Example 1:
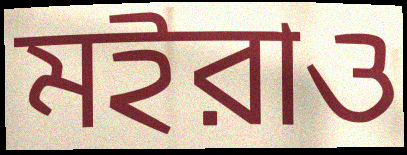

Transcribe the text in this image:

মইরাও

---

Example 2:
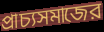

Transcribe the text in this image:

প্রাচ্যসমাজের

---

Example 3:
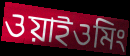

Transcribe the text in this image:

ওয়াইওমিং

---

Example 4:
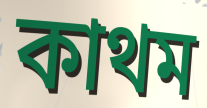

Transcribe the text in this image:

কাথম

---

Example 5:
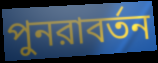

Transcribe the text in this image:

পুনরাবর্তন